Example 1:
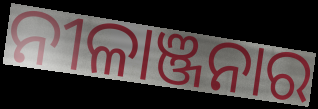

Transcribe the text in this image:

ନୀଳାଞ୍ଜନାର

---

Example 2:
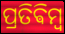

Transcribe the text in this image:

ପ୍ରତିଵିମ୍ବ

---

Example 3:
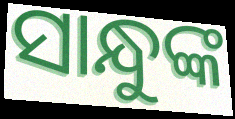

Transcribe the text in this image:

ସାନ୍ଧୁଙ୍କ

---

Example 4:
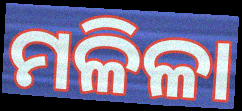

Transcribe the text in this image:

ମଳିଳା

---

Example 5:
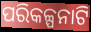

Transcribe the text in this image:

ପରିକଳ୍ପନାଟି